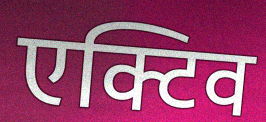
एक्टिव